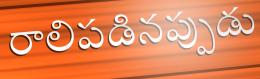
రాలిపడినప్పుడు